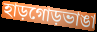
হাড়গোড়ভাঙা